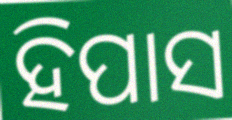
ହିପାସ